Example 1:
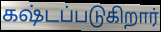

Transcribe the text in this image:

கஷ்டப்படுகிறார்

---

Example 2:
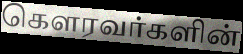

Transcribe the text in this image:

கௌரவர்களின்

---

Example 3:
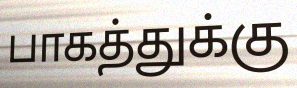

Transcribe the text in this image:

பாகத்துக்கு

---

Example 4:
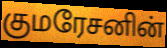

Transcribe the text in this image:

குமரேசனின்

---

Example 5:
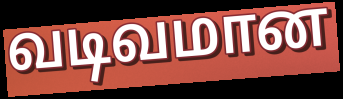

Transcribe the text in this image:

வடிவமான